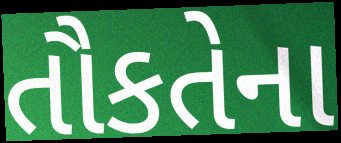
તૌકતેના